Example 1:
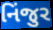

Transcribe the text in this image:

નિંજુર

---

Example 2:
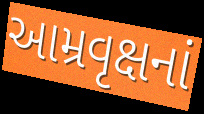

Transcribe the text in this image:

આમ્રવૃક્ષનાં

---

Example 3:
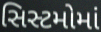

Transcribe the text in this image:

સિસ્ટમોમાં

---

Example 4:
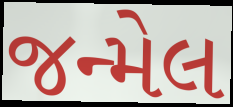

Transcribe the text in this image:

જન્મેલ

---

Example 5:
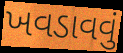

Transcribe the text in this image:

ખવડાવવું